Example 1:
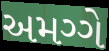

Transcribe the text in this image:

અમગ્ગે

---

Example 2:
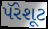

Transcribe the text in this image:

પૅરેશૂટ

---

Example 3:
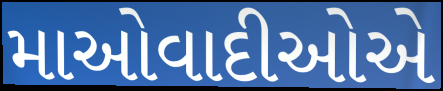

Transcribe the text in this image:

માઓવાદીઓએ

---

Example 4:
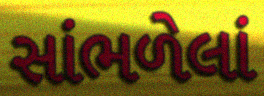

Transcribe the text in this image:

સાંભળેલાં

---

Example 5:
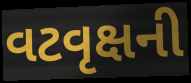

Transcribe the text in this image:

વટવૃક્ષની